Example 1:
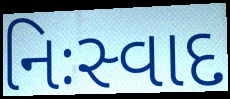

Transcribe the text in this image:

નિઃસ્વાદ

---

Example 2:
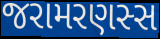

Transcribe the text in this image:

જરામરણસ્સ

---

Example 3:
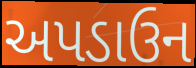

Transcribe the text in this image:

અપડાઉન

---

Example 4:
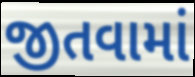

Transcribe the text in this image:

જીતવામાં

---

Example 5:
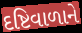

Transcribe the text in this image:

દષ્ટિવાળાને